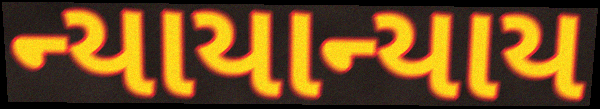
ન્યાયાન્યાય